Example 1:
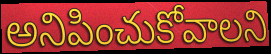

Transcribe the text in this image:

అనిపించుకోవాలని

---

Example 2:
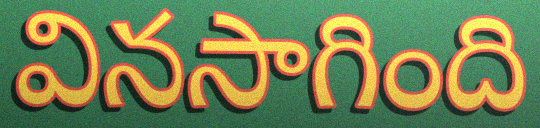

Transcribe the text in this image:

వినసాగింది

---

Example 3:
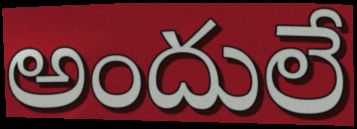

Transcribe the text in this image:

అందులే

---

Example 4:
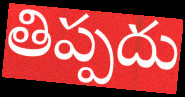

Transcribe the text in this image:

తిప్పదు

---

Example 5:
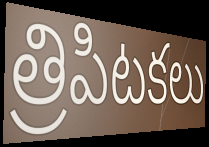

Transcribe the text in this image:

త్రిపిటకలు